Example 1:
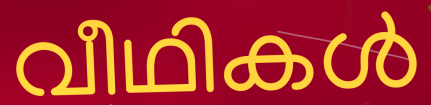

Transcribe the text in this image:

വീഥികൾ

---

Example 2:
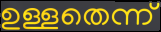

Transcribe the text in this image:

ഉള്ളതെന്ന്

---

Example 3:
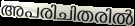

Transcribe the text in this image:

അപരിചിതരിൽ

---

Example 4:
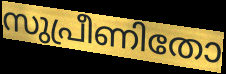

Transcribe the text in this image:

സുപ്രീണിതോ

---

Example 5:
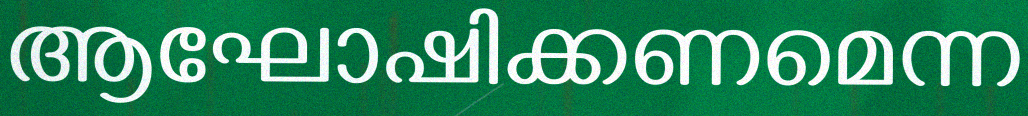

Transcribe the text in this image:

ആഘോഷിക്കണമെന്ന